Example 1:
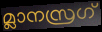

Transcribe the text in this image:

മ്ലാനസ്രഗ്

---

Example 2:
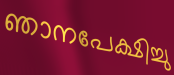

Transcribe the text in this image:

ഞാനപേക്ഷിച്ചു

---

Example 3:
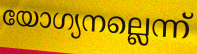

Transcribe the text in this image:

യോഗ്യനല്ലെന്ന്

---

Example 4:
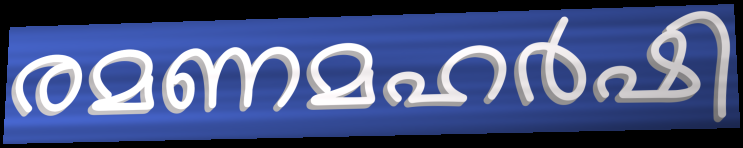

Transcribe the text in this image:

രമണമഹർഷി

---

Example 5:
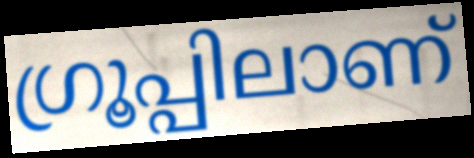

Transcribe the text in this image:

ഗ്രൂപ്പിലാണ്